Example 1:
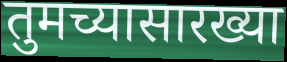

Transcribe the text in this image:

तुमच्यासारख्या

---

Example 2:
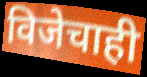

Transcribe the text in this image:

विजेचाही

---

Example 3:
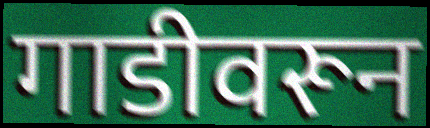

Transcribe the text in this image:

गाडीवरून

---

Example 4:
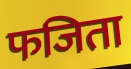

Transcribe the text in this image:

फजिता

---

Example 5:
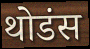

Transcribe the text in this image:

थोडंस